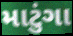
માટુંગા